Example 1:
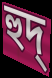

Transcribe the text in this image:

হুদ্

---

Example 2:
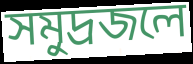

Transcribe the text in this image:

সমুদ্রজলে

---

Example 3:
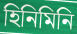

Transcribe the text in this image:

হিনিমিনি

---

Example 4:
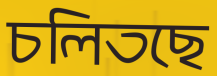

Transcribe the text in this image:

চলিতছে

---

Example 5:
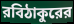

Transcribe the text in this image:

রবিঠাকুরের